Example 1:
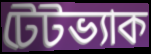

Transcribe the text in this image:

টেটভ্যাক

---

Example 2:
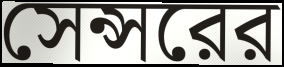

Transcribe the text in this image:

সেন্সরের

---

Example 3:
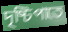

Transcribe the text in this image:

দৃষ্টিপাতে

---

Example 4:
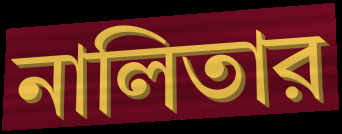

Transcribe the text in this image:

নালিতার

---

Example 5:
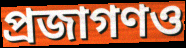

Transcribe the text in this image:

প্রজাগণও